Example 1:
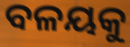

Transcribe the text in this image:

ବଳୟକୁ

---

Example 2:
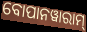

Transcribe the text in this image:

ବୋପାନୱାରାମ୍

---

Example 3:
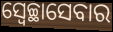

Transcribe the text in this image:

ସ୍ୱେଚ୍ଛାସେବାର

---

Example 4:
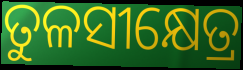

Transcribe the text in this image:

ତୁଳସୀକ୍ଷେତ୍ର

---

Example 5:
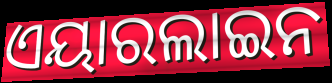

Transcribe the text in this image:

ଏୟାରଲାଇନ